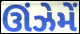
ઊંઝેમેં